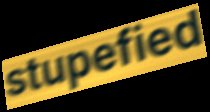
stupefied